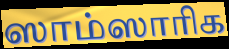
ஸாம்ஸாரிக